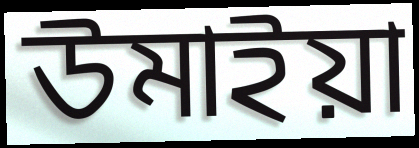
উমাইয়া